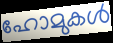
ഹോമുകൾ